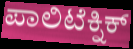
ಪಾಲಿಟೆಕ್ನಿಕ್